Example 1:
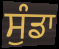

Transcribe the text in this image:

ਸੁੰਡਾ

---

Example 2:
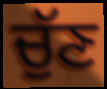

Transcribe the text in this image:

ਚੁੱਣ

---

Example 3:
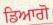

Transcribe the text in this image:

ਡਿਆਗੋ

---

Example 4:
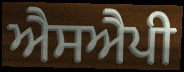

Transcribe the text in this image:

ਐਸਐਪੀ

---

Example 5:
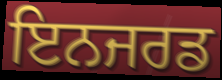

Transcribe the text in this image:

ਇਨਜਰਡ